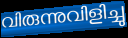
വിരുന്നുവിളിച്ചു